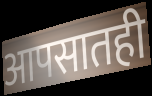
आपसातही